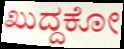
ಖುದ್ದಕೋ